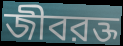
জীবরক্ত